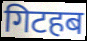
गिटहब